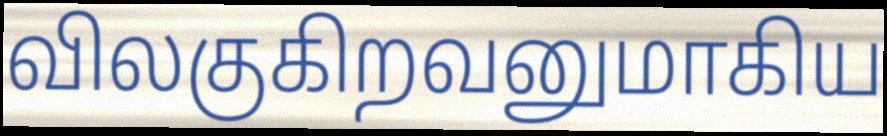
விலகுகிறவனுமாகிய